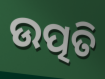
ଉତ୍ପତି